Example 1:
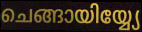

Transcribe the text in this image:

ചെങ്ങായിയ്യ്യേ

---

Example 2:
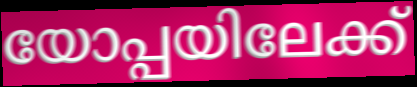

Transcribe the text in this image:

യോപ്പയിലേക്ക്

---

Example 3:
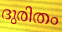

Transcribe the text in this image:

ദുരിതം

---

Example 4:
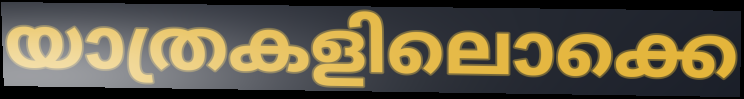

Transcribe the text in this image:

യാത്രകളിലൊക്കെ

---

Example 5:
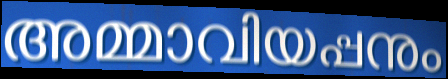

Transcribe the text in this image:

അമ്മാവിയപ്പനും